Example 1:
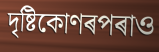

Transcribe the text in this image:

দৃষ্টিকোণৰপৰাও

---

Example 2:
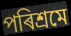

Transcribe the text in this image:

পৰিশ্ৰমে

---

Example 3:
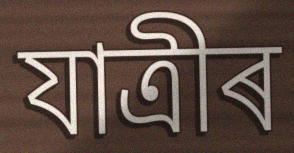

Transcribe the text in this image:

যাত্ৰীৰ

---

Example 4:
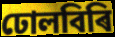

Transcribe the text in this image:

ঢোলবিৰি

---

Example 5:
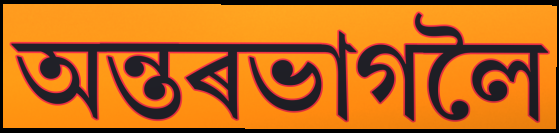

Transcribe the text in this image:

অন্তৰভাগলৈ